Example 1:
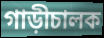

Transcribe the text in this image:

গাড়ীচালক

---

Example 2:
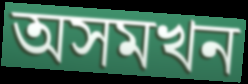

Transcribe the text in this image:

অসমখন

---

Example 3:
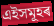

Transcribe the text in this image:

এইসমূহৰ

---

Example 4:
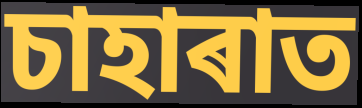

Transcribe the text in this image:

চাহাৰাত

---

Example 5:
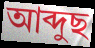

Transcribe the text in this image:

আব্দুছ